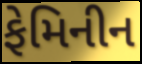
ફેમિનીન